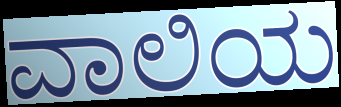
ವಾಲಿಯ